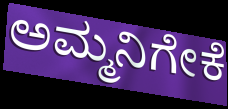
ಅಮ್ಮನಿಗೇಕೆ